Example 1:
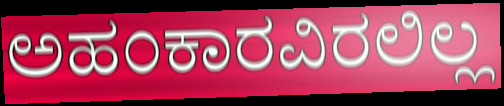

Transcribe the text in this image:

ಅಹಂಕಾರವಿರಲಿಲ್ಲ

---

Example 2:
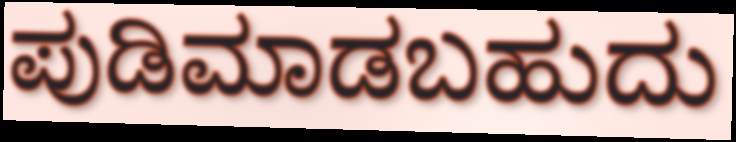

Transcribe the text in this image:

ಪುಡಿಮಾಡಬಹುದು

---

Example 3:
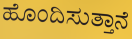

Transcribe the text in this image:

ಹೊಂದಿಸುತ್ತಾನೆ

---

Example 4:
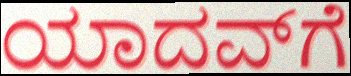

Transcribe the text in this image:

ಯಾದವ್‌ಗೆ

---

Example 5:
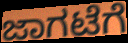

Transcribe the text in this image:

ಜಾಗಟೆಗೆ